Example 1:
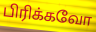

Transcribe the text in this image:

பிரிக்கவோ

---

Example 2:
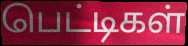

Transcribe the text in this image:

பெட்டிகள்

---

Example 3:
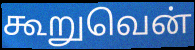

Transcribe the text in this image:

கூறுவென்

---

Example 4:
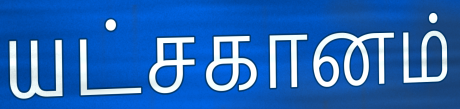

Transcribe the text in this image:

யட்சகானம்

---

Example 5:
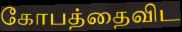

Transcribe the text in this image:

கோபத்தைவிட